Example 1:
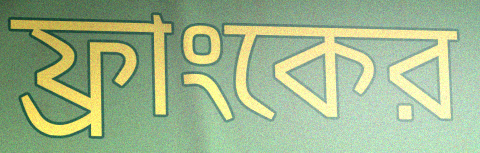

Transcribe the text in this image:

ফ্রাংকের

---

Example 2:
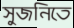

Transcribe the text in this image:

সুজনিতে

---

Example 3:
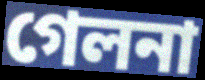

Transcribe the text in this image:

গেলনা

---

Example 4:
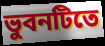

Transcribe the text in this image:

ভুবনটিতে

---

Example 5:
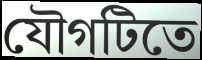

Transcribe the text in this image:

যৌগটিতে